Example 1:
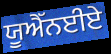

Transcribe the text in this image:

ਯੂਐੱਨਈਏ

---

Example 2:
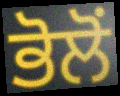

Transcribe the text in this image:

ਭੋਲੋਂ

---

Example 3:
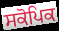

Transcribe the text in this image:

ਸਕੋਪਿਕ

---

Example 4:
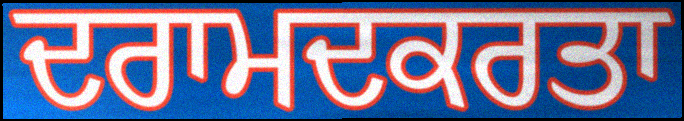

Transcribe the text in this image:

ਦਰਾਮਦਕਰਤਾ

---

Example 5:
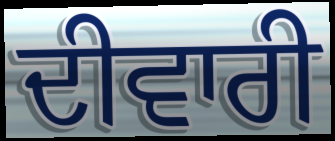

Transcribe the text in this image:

ਦੀਵਾਰੀ